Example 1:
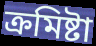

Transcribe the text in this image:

ক্ৰমিষ্টা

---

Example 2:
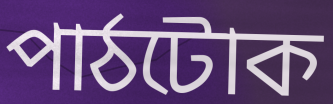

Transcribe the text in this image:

পাঠটোক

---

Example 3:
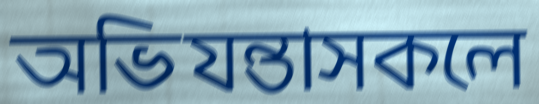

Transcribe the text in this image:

অভিযন্তাসকলে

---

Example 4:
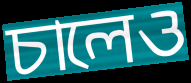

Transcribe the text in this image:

চালেও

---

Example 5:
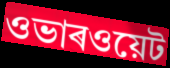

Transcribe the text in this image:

ওভাৰওয়েট